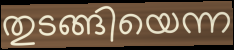
തുടങ്ങിയെന്ന